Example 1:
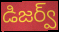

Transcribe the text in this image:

డిజర్వ్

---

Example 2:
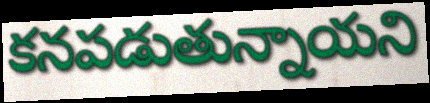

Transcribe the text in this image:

కనపడుతున్నాయని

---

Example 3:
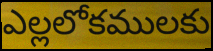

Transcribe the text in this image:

ఎల్లలోకములకు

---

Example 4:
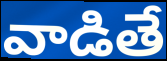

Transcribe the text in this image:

వాడితే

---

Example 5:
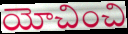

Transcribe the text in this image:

యోచించి